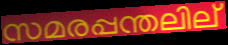
സമരപ്പന്തലില്